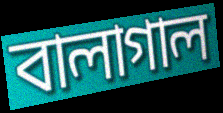
বালাগাল